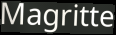
Magritte